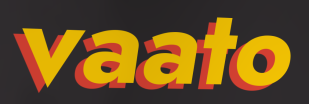
vaato